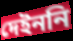
দেইননি